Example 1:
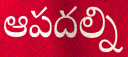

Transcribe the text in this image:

ఆపదల్ని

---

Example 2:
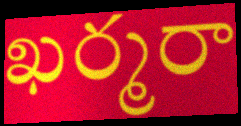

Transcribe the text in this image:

ఖర్మరా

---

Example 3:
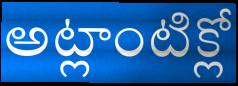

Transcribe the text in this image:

అట్లాంటిక్లో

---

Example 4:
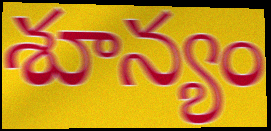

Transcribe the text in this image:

శూన్యం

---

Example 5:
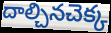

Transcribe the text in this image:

దాల్చినచెక్క